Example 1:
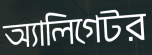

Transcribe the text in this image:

অ্যালিগেটর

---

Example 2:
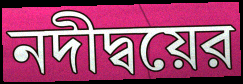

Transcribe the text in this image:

নদীদ্বয়ের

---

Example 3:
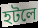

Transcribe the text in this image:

হটলে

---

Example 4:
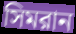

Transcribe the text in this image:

সিমরান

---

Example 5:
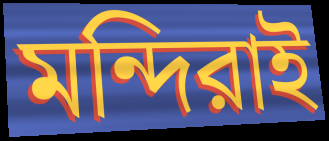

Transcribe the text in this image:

মন্দিরাই